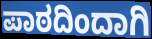
ಪಾಠದಿಂದಾಗಿ